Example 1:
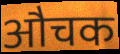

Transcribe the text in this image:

औचक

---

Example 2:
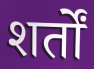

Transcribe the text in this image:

शर्तों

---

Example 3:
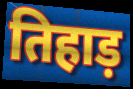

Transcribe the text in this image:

तिहाड़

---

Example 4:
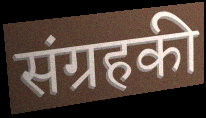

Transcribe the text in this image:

संग्रहकी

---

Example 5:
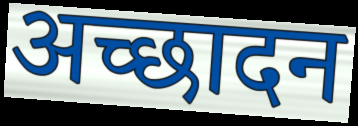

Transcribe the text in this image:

अच्छादन